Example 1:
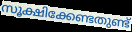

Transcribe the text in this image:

സൂക്ഷിക്കേണ്ടതുണ്ട്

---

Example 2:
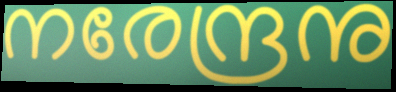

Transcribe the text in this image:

നരേന്ദ്രനു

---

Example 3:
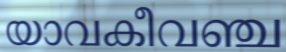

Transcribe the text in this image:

യാവകീവഞ്ച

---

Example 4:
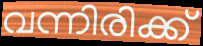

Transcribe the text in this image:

വന്നിരിക്ക്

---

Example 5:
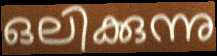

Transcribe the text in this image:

ഒലിക്കുന്നു